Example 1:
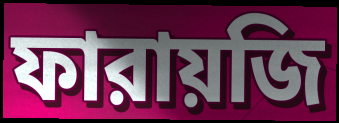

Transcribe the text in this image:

ফারায়জি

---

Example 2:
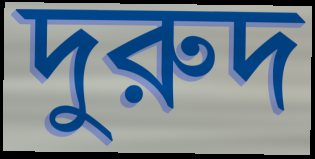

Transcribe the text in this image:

দুরুদ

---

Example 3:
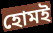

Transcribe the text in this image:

হোমই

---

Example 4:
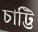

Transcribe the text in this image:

চাট্টি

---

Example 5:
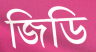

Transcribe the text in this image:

জিডি